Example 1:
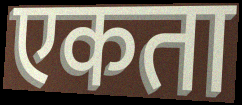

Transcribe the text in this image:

एकता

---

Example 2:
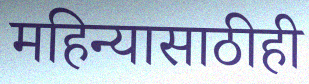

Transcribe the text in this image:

महिन्यासाठीही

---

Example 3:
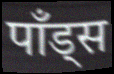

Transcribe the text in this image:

पाँड्स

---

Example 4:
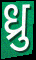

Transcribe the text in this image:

ध्रु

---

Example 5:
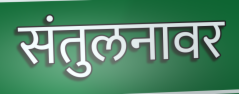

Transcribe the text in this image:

संतुलनावर